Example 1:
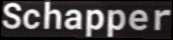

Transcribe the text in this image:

Schapper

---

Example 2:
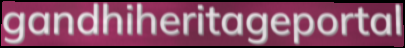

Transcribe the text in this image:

gandhiheritageportal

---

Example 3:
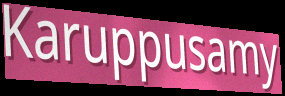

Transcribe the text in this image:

Karuppusamy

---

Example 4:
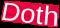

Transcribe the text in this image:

Doth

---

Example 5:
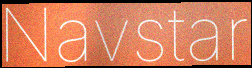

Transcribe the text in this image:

Navstar